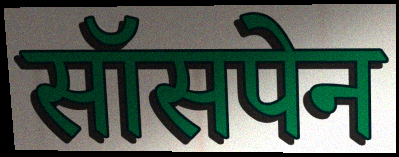
सॉसपेन